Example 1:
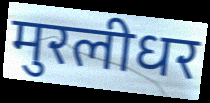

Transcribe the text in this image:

मुरलीधर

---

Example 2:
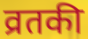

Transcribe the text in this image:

व्रतकी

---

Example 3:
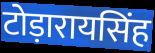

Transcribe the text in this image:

टोड़ारायसिंह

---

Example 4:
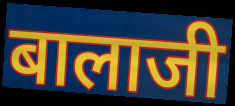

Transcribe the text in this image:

बालाजी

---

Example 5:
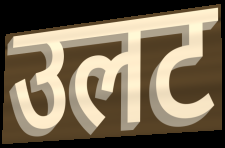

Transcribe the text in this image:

उलट